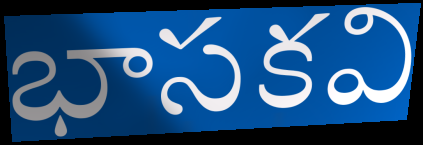
భాసకవి